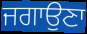
ਜਗਾਉਣਾ